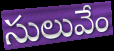
సులువేం